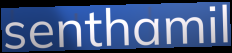
senthamil